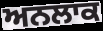
ਅਨਲਾਕ